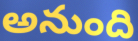
అనుంది